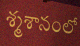
శ్మశానంలో